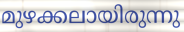
മുഴക്കലായിരുന്നു